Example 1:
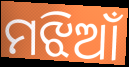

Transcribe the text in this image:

ମଝିଆଁ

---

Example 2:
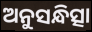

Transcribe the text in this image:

ଅନୁସନ୍ଧିତ୍ସା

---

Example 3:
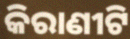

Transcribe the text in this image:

କିରାଣୀଟି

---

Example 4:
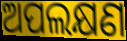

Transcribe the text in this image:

ଅପଲକ୍ଷଣ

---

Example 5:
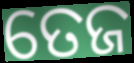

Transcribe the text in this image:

ତେଜ